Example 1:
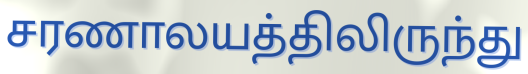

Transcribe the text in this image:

சரணாலயத்திலிருந்து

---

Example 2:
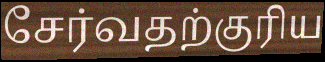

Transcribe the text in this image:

சேர்வதற்குரிய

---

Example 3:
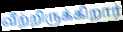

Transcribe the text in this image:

வீற்றிருக்கிறார்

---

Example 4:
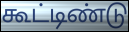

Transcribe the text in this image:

கூட்டிண்டு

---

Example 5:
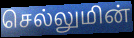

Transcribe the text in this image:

செல்லுமின்